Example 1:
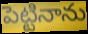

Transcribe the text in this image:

పెట్టినాను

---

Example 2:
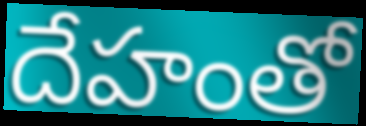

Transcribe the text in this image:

దేహంతో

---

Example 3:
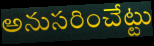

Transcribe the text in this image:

అనుసరించేట్టు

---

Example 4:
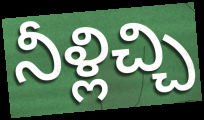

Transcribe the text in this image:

నీళ్లిచ్చి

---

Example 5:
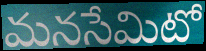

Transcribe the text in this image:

మనసేమిటో